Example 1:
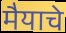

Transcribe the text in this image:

मैयाचे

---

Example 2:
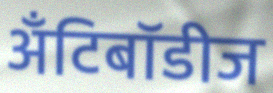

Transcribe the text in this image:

अँटिबॉडीज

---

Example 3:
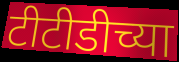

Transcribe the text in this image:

टीटीडीच्या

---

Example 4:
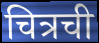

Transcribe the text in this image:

चित्रची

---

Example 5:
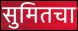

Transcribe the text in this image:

सुमितचा